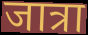
जात्रा